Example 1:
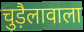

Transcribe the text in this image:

चुड़ैलावाला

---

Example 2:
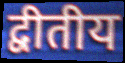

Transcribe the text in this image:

द्वीतीय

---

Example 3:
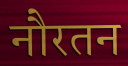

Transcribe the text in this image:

नौरतन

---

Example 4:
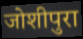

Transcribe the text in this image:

जोशीपुरा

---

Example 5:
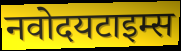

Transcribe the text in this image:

नवोदयटाइम्स